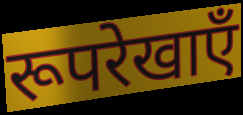
रूपरेखाएँ